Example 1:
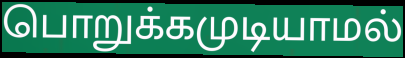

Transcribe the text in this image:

பொறுக்கமுடியாமல்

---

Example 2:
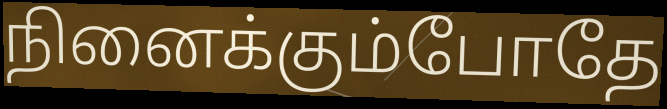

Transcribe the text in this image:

நினைக்கும்போதே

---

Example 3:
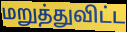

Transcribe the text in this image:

மறுத்துவிட்ட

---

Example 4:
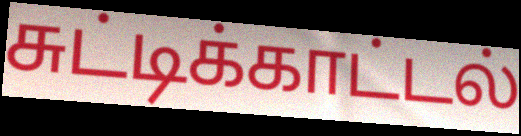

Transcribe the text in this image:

சுட்டிக்காட்டல்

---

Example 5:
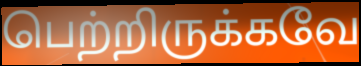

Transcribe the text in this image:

பெற்றிருக்கவே